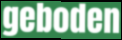
geboden